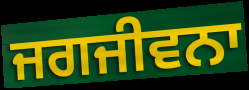
ਜਗਜੀਵਨਾ